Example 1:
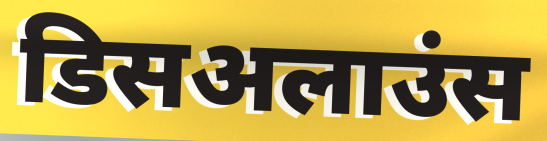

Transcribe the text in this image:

डिसअलाउंस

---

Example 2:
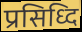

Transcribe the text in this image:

प्रसिध्दि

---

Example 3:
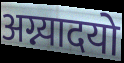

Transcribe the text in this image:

अग्न्यादयो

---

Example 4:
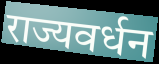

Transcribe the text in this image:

राज्यवर्धन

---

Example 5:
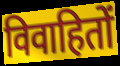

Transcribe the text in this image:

विवाहितों